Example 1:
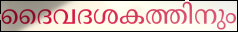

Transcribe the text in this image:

ദൈവദശകത്തിനും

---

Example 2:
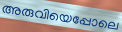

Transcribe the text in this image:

അരുവിയെപ്പോലെ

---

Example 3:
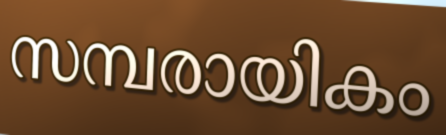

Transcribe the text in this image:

സമ്പരായികം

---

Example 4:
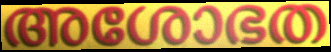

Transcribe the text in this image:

അശോഭത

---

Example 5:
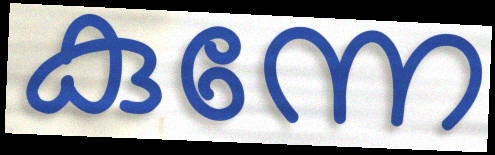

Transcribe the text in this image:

കുന്നേ